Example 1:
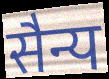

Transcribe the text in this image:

सैन्‍य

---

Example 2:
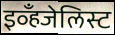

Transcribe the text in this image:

इव्हँजेलिस्ट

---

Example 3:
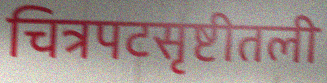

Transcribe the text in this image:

चित्रपटसृष्टीतली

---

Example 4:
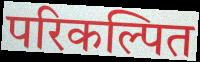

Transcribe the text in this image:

परिकल्पित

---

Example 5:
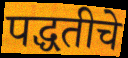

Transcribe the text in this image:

पद्धतीचे